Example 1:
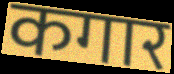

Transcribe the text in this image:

कगार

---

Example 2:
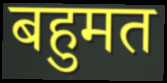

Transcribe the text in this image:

बहुमत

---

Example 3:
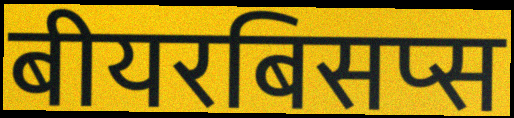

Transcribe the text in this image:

बीयरबिसप्स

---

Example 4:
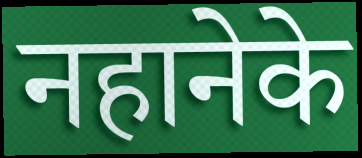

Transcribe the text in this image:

नहानेके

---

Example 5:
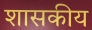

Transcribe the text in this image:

शासकीय